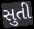
સુતી